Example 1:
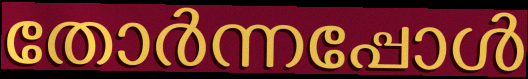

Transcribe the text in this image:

തോർന്നപ്പോൾ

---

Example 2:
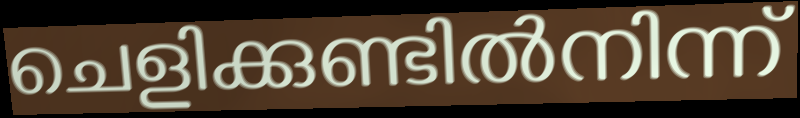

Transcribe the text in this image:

ചെളിക്കുണ്ടിൽനിന്ന്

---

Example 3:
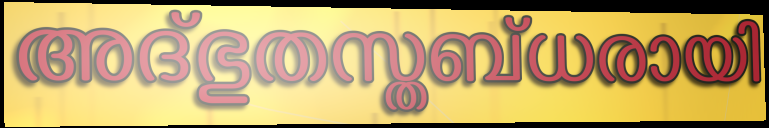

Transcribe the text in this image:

അദ്ഭുതസ്തബ്ധരായി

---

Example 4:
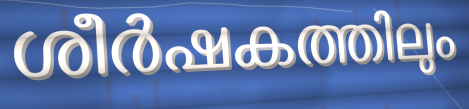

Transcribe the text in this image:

ശീർഷകത്തിലും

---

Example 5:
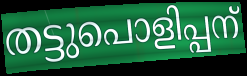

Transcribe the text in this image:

തട്ടുപൊളിപ്പന്